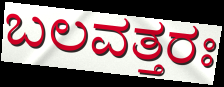
ಬಲವತ್ತರಃ